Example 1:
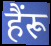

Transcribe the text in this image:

हैंरू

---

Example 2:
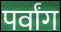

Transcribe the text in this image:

पर्वांग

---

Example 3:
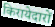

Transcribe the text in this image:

किरायेदारों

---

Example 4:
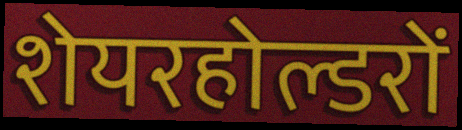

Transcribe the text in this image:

शेयरहोल्डरों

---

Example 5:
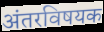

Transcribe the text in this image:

अंतरविषयक